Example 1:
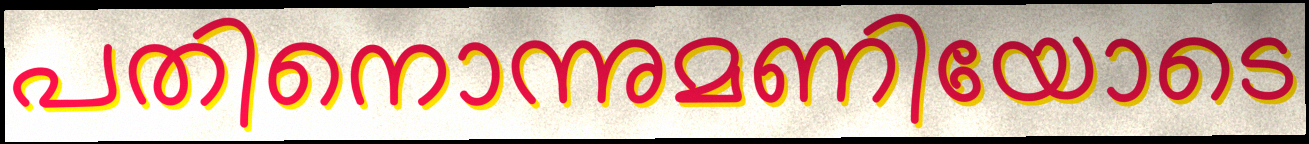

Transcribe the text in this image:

പതിനൊന്നുമണിയോടെ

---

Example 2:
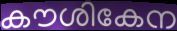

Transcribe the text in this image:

കൗശികേന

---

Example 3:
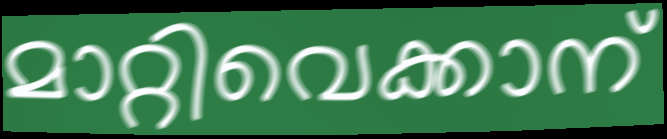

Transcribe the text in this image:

മാറ്റിവെക്കാന്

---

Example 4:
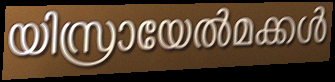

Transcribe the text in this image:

യിസ്രായേൽമക്കൾ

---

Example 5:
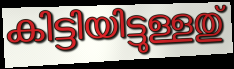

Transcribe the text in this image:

കിട്ടിയിട്ടുള്ളതു്